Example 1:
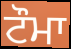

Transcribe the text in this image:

ਟੌਮਾ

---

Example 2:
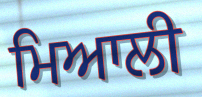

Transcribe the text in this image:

ਮਿਆਲੀ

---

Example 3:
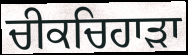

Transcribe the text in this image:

ਚੀਕਚਿਹਾੜਾ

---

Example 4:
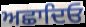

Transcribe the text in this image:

ਅਛਾਦਿਓ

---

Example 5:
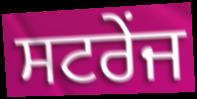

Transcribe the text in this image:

ਸਟਰੇਂਜ